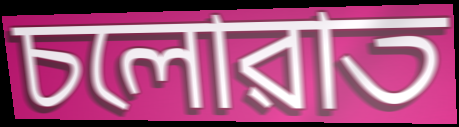
চলোৱাত